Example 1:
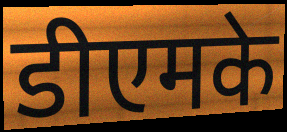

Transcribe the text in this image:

डीएमके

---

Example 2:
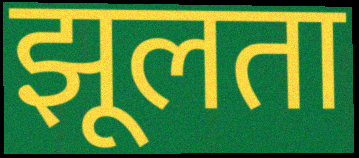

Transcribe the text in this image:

झूलता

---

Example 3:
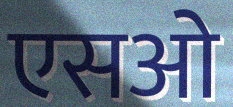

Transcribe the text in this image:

एसओ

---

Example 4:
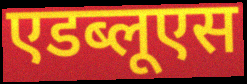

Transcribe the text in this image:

एडब्लूएस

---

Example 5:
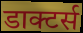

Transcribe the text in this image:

डाक्टर्स